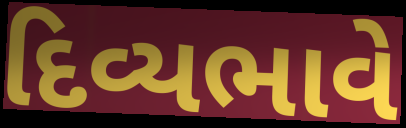
દિવ્યભાવે